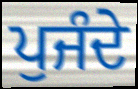
ਪੁਜੰਦੇ